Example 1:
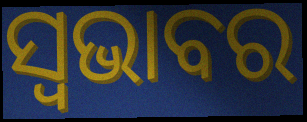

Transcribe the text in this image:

ସ୍ଵଭାବର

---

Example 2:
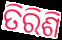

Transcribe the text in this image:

ତିରିଶି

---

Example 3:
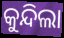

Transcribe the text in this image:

କୁନ୍ଦିଲା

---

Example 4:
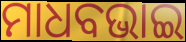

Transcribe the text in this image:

ମାଧବଭାଇ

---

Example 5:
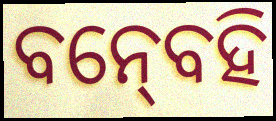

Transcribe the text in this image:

ବନ୍‍ବେହି